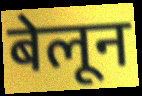
बेलून